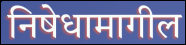
निषेधामागील